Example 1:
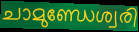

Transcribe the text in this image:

ചാമുണ്ഡേശ്വരി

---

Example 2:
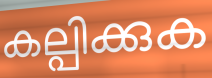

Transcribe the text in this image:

കല്പിക്കുക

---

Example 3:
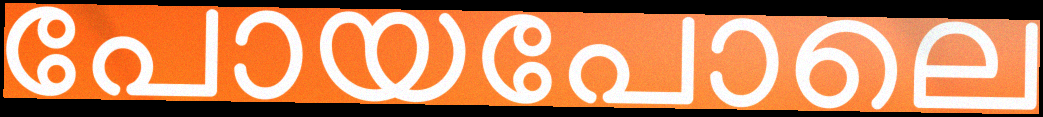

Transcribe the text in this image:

പോയപോലെ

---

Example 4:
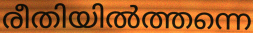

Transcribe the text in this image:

രീതിയിൽത്തന്നെ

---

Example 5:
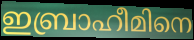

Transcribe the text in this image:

ഇബ്രാഹീമിനെ